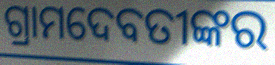
ଗ୍ରାମଦେବତୀଙ୍କର